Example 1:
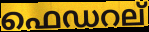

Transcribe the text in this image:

ഫെഡറല്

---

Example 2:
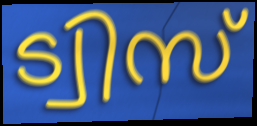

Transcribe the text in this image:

ട്വിസ്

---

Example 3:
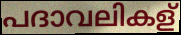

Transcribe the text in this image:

പദാവലികള്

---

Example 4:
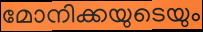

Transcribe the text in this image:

മോനിക്കയുടെയും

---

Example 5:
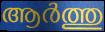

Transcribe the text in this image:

ആർത്തു